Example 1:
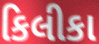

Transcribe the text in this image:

કિલીકા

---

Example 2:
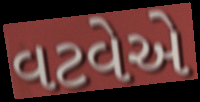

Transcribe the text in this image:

વટવેએ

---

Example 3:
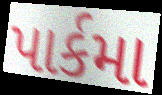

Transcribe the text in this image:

પાર્કમા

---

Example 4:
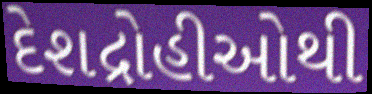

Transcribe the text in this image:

દેશદ્રોહીઓથી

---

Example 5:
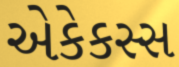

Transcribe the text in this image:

એકેકસ્સ